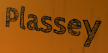
Plassey